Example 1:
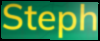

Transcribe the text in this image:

Steph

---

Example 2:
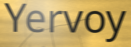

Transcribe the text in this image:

Yervoy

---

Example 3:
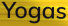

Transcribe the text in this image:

Yogas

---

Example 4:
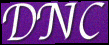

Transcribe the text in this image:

DNC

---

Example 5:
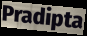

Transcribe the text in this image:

Pradipta